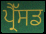
ਪ੍ਰੈੱਸਡ